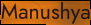
Manushya